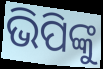
ଭିପିଙ୍କୁ